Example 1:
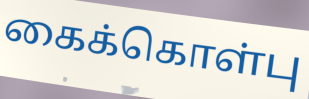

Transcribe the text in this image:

கைக்கொள்பு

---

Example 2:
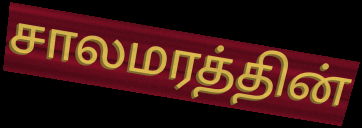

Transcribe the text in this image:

சாலமரத்தின்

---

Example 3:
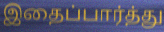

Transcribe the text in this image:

இதைப்பார்த்து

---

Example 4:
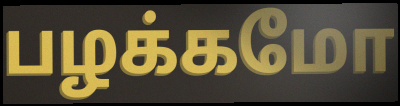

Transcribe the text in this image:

பழக்கமோ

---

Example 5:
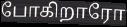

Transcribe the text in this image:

போகிறாரோ